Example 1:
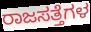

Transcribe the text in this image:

ರಾಜಸತ್ತೆಗಳ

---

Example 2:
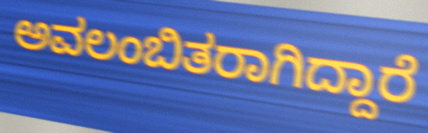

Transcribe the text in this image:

ಅವಲಂಬಿತರಾಗಿದ್ದಾರೆ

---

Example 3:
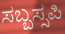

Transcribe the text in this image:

ಸಬ್ಬಸ್ಸಪಿ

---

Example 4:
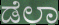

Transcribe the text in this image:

ಡೆಲಾ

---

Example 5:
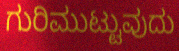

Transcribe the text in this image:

ಗುರಿಮುಟ್ಟುವುದು